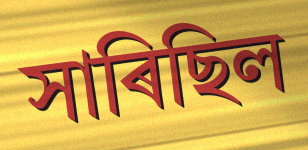
সাৰিছিল